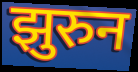
झुरुन